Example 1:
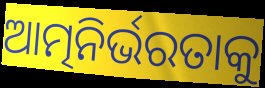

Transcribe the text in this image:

ଆତ୍ମନିର୍ଭରତାକୁ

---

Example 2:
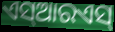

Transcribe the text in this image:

ଏସ୍ଆରଏସ୍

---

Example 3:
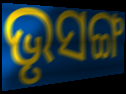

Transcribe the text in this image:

ଭୃସଙ୍ଗ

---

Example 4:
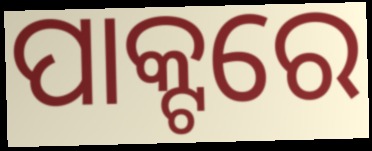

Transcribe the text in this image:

ପାକ୍ଟରେ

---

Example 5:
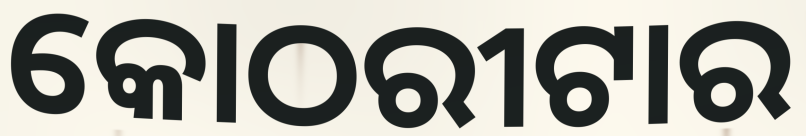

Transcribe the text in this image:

କୋଠରୀଟାର